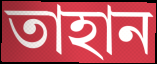
তাহান